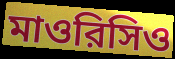
মাওরিসিও